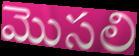
మొసలి